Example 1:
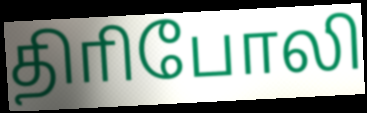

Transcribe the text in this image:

திரிபோலி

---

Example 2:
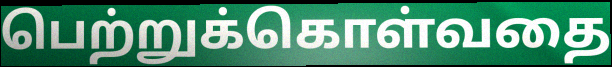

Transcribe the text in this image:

பெற்றுக்கொள்வதை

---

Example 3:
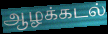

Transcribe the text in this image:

ஆழக்கடல்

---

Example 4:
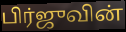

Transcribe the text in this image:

பிர்ஜுவின்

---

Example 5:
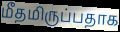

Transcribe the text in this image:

மீதமிருப்பதாக